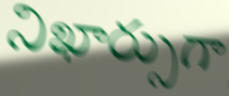
నిఖార్సుగా